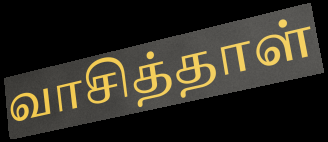
வாசித்தாள்